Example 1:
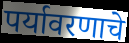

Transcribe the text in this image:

पर्यावरणाचे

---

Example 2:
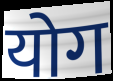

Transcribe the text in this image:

योग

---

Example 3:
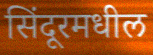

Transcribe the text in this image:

सिंदूरमधील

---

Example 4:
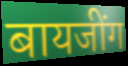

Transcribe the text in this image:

बायजींग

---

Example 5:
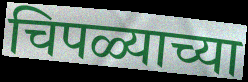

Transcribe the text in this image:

चिपळ्याच्या